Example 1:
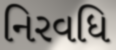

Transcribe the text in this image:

નિરવધિ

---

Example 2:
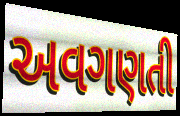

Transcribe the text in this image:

અવગણતી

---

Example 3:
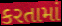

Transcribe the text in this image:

કરતામાં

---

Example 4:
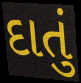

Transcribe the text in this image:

દાતું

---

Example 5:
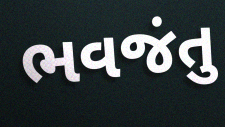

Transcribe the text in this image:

ભવજંતુ